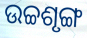
ଉଚ୍ଚଶୃଙ୍ଗ